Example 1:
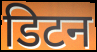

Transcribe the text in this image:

डिटन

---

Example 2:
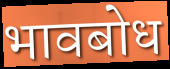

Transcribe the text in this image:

भावबोध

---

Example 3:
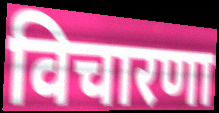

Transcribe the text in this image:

विचारणा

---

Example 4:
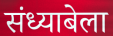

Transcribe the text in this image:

संध्याबेला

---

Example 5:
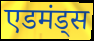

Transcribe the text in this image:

एडमंड्स